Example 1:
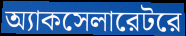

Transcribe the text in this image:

অ্যাকসেলারেটরে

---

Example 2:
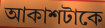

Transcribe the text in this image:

আকাশটাকে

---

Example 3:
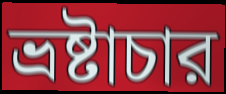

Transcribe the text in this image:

ভ্রষ্টাচার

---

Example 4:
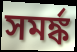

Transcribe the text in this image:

সমর্ঙ্ক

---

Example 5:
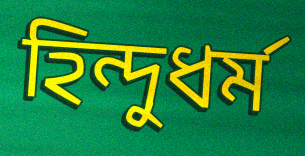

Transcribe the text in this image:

হিন্দুধর্ম